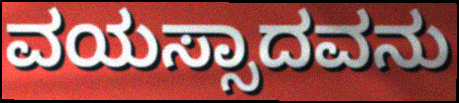
ವಯಸ್ಸಾದವನು